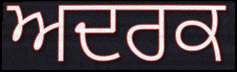
ਅਦਰਕ